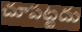
చూపట్టదు